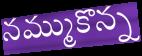
నమ్ముకొన్న